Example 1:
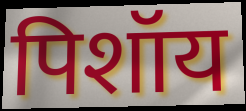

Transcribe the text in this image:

पिशॉय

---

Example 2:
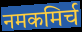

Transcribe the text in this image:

नमकमिर्च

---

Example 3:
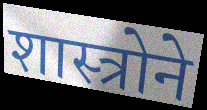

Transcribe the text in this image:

शास्त्रोने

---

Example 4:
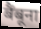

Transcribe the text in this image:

बैंबूना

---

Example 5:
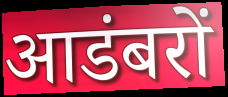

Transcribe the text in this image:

आडंबरों